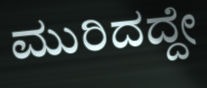
ಮುರಿದದ್ದೇ